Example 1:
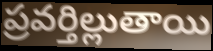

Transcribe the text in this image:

ప్రవర్తిల్లుతాయి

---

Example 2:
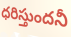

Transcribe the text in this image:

ధరిస్తుందనీ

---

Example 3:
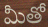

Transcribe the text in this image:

మీతో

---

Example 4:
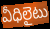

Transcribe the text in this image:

వీధిలైటు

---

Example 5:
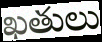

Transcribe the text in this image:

ఖతులు